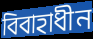
বিবাহাধীন